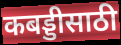
कबड्डीसाठी